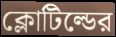
ক্লোটিল্ডের